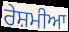
ਰੇਸ਼ਮੀਆ